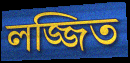
লজ্জিত